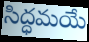
సిద్ధమయే